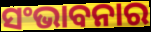
ସଂଭାବନାର